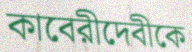
কাবেরীদেবীকে